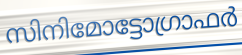
സിനിമോട്ടോഗ്രാഫർ